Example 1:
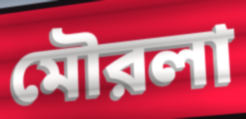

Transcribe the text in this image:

মৌরলা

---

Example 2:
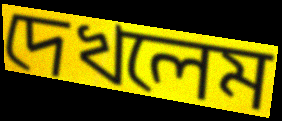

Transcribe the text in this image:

দেখলেম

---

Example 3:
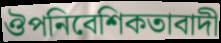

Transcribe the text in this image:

ঔপনিবেশিকতাবাদী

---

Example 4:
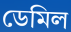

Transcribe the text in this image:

ডেমিল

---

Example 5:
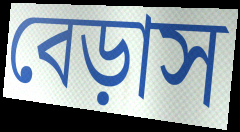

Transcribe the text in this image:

বেড়াস